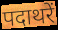
पदाथरें